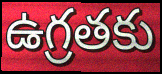
ఉగ్రతకు